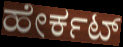
ಹೇರ್ಕಟ್